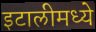
इटालीमध्ये